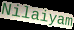
Nilaiyam